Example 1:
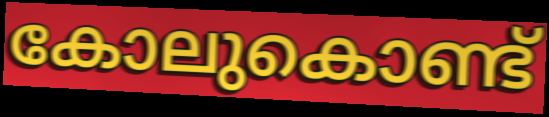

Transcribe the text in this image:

കോലുകൊണ്ട്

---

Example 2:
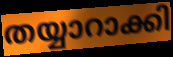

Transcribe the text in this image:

തയ്യാറാക്കി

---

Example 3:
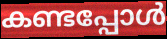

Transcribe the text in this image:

കണ്ടപ്പോൾ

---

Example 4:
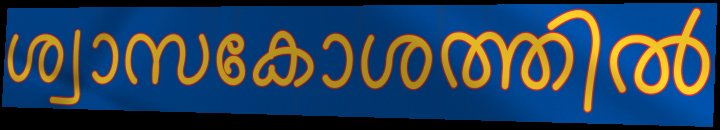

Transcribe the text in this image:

ശ്വാസകോശത്തിൽ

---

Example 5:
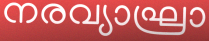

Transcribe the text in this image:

നരവ്യാഘ്രാ